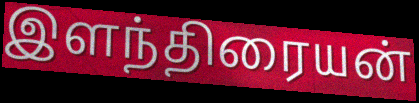
இளந்திரையன்